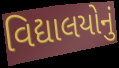
વિદ્યાલયોનું